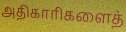
அதிகாரிகளைத்